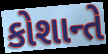
કોશાન્તે